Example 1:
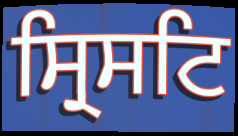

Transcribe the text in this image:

ਸ੍ਰਿਸਟਿ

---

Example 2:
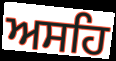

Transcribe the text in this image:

ਅਸਹਿ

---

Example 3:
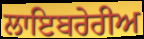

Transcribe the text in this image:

ਲਾਇਬਰੇਰੀਅ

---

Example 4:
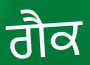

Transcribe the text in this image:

ਗੈਕ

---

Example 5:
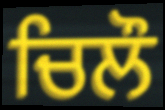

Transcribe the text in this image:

ਚਿਲੌ